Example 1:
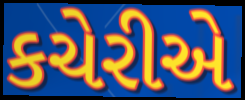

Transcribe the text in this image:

કચેરીએ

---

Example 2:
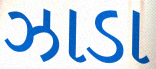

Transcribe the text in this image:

ઝાડા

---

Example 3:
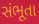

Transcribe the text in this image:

સંભૂતા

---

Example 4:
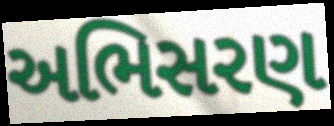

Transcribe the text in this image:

અભિસરણ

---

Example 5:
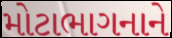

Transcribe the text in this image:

મોટાભાગનાને